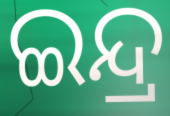
ଇନ୍ଦ୍ର